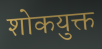
शोकयुक्त